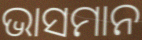
ଭାସମାନ